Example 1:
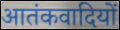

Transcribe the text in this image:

आतंकवादियों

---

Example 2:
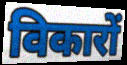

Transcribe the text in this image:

विकारों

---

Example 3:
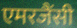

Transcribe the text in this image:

एमरजैंसी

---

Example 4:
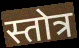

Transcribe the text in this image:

स्तोत्र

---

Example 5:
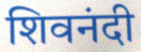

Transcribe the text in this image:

शिवनंदी